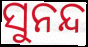
ସୁନନ୍ଦ